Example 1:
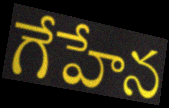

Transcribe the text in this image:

గేహేన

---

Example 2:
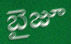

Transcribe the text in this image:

బైజూ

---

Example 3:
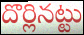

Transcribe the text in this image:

దొర్లినట్టు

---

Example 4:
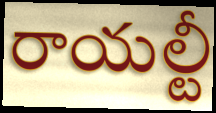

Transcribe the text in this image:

రాయల్టీ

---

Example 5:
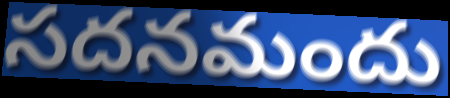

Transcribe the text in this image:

సదనమందు